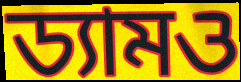
ড্যামও